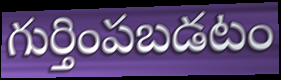
గుర్తింపబడటం